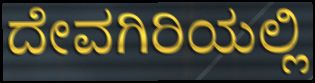
ದೇವಗಿರಿಯಲ್ಲಿ